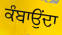
ਕੰਬਾਉਂਦਾ